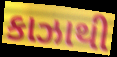
કાઝાથી